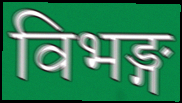
विभङ्ग